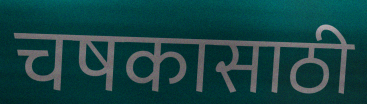
चषकासाठी